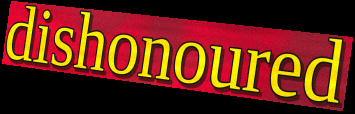
dishonoured